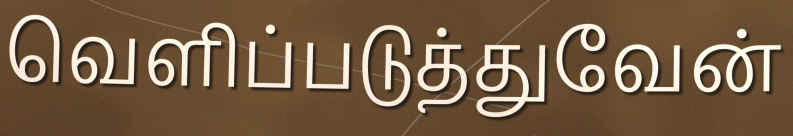
வெளிப்படுத்துவேன்